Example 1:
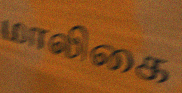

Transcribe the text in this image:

மாலிகை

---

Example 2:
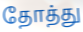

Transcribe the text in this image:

தோத்து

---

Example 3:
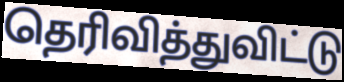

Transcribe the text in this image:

தெரிவித்துவிட்டு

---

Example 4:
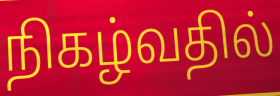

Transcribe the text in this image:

நிகழ்வதில்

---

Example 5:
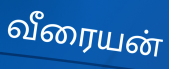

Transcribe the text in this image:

வீரையன்